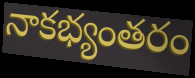
నాకభ్యంతరం